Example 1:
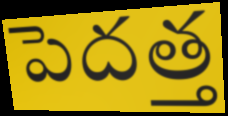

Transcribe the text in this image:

పెదత్త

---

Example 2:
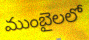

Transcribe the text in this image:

ముంబైలలో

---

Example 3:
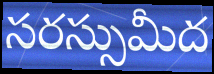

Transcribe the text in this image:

సరస్సుమీద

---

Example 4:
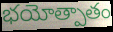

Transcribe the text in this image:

భయోత్పాతం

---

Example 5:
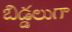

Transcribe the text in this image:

బిడ్డలుగా